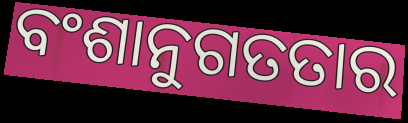
ବଂଶାନୁଗତତାର